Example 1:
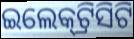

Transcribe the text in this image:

ଇଲେକ୍‌ଟ୍ରିସିଟି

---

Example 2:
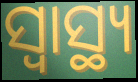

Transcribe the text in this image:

ସ୍ୱାସ୍ଥ୍ୟ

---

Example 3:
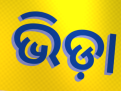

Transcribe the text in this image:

ଭିଡ଼ା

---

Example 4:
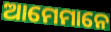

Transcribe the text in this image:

ଆମେମାନେ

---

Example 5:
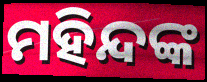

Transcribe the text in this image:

ମହିନ୍ଦଙ୍କ